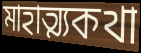
মাহাত্ম্যকথা